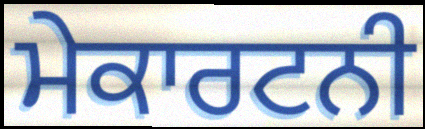
ਮੇਕਾਰਟਨੀ